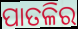
ପାତଳିର